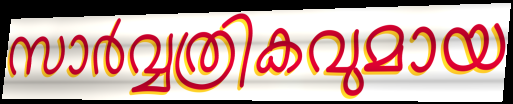
സാർവ്വത്രികവുമായ